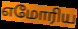
எமோரிய